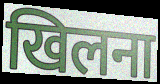
खिलना